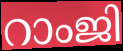
റാംജി